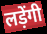
लड़ेंगी